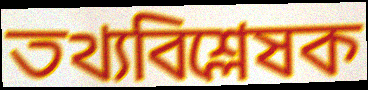
তথ্যবিশ্লেষক